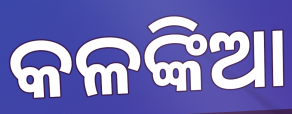
କଳଙ୍କିଆ